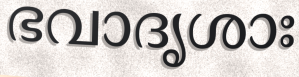
ഭവാദൃശാഃ